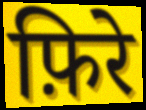
फ़िरे